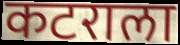
कटराला